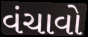
વંચાવો